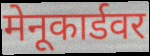
मेनूकार्डवर